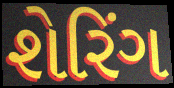
શેરિંગ